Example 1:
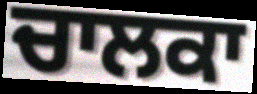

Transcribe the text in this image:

ਚਾਲਕਾ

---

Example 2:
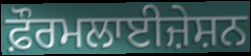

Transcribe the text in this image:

ਫ਼ੌਰਮਲਾਈਜ਼ੇਸ਼ਨ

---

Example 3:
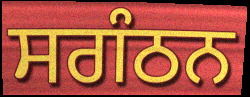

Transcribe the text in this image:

ਸਗੰਠਨ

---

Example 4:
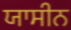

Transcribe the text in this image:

ਯਾਸੀਨ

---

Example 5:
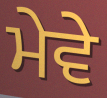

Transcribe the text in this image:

ਮੇਵੇ